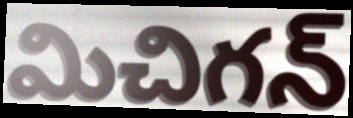
మిచిగన్